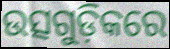
ଉତ୍ସଗୁଡ଼ିକରେ